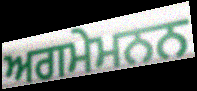
ਅਗਮੇਮਨਨ